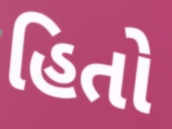
હિતો